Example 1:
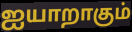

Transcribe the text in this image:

ஐயாறாகும்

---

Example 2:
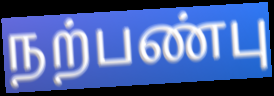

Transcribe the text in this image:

நற்பண்பு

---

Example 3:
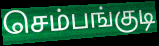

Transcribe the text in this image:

செம்பங்குடி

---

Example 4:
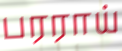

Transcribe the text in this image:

பரராய்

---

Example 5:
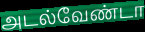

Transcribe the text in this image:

அடல்வேண்டா